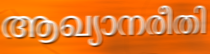
ആഖ്യാനരീതി